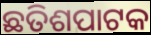
ଛତିଶପାଟକ